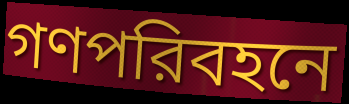
গণপরিবহনে